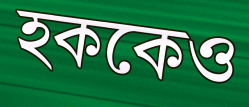
হককেও